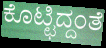
ಕೊಟ್ಟಿದ್ದಂತೆ